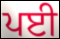
ਪਈ